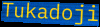
Tukadoji